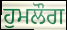
ਹੁਮਲੌਗ